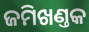
ଜମିଖଣ୍ତକ